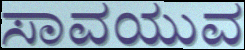
ಸಾವಯುವ